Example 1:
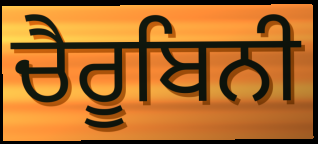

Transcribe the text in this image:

ਚੈਰੂਬਿਨੀ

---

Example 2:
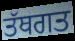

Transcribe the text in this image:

ਤੱਥਗਤ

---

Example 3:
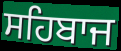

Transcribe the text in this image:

ਸਹਿਬਾਜ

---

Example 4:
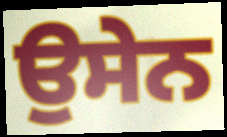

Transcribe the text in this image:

ਉਸੇਨ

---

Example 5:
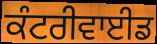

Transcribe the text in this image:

ਕੰਟਰੀਵਾਈਡ